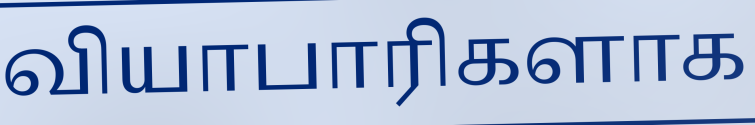
வியாபாரிகளாக